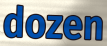
dozen